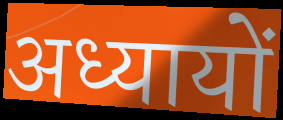
अध्यायों